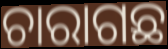
ଚାରାଗଛ